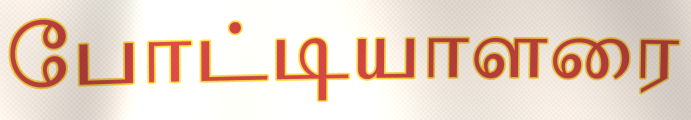
போட்டியாளரை